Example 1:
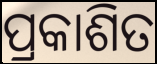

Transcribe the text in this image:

ପ୍ରକାଶିତ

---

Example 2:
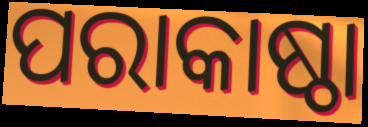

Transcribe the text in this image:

ପରାକାଷ୍ଠା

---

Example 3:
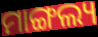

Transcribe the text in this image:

ମାଙ୍ଗଲ୍ୟ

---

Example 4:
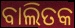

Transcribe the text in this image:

ବାଲିତକ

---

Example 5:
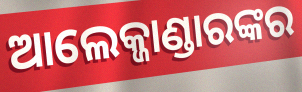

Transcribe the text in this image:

ଆଲେକ୍ଜାଣ୍ଡାରଙ୍କର